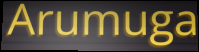
Arumuga